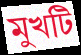
মুখটি